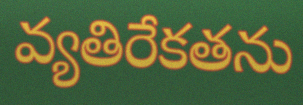
వ్యతిరేకతను